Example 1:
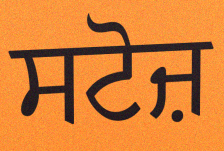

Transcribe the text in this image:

ਸਟੋਜ਼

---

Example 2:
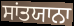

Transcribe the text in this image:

ਸਾਂਤਯਾਨਾ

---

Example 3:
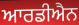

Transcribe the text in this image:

ਆਰਡੀਐਨ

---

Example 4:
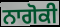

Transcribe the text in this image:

ਨਾਗੋਕੀ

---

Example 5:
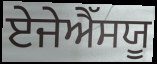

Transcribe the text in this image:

ਏਜੇਐੱਸਯੂ